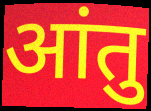
आंतु